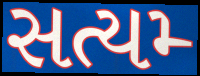
સત્યમ્‍